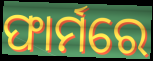
ଫାର୍ମରେ